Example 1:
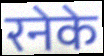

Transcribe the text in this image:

रनेके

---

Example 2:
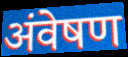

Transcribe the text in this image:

अंवेषण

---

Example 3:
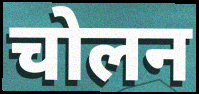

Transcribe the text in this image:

चोलन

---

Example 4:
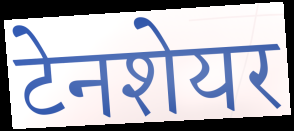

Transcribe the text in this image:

टेनशेयर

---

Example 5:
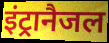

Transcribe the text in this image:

इंट्रानैजल